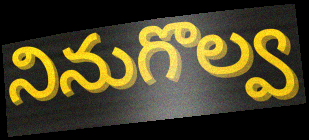
నినుగొల్వ